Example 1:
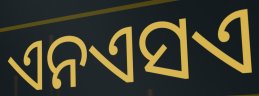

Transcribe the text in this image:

ଏନଏସଏ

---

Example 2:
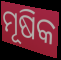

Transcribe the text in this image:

ମୂଷିକ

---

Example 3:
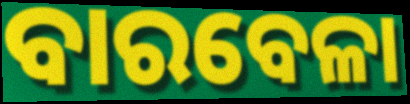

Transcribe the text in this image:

ବାରବେଳା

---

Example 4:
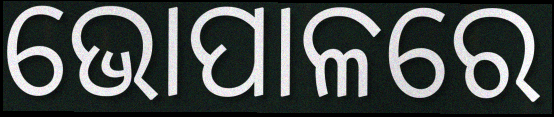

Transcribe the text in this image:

ଭୋପାଳରେ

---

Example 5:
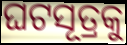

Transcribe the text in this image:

ଘଟସୂତ୍ରକୁ